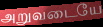
அறுவடையே